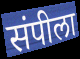
संपीला